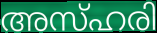
അസ്ഹരി